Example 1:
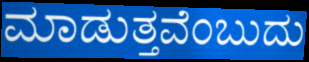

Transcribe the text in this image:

ಮಾಡುತ್ತವೆಂಬುದು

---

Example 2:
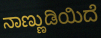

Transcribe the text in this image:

ನಾಣ್ಣುಡಿಯಿದೆ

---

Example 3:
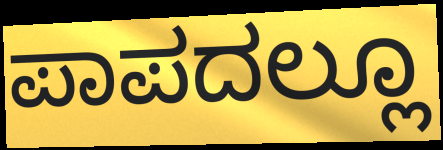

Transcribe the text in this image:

ಪಾಪದಲ್ಲೂ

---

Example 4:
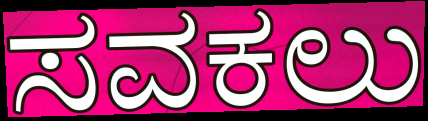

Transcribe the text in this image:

ಸವಕಲು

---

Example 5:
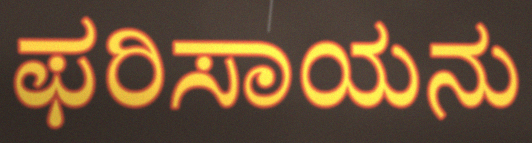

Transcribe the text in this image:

ಫರಿಸಾಯನು